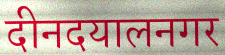
दीनदयालनगर